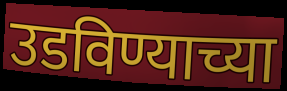
उडविण्याच्या